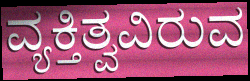
ವ್ಯಕ್ತಿತ್ವವಿರುವ